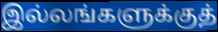
இல்லங்களுக்குத்